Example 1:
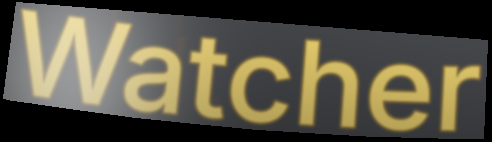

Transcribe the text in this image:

Watcher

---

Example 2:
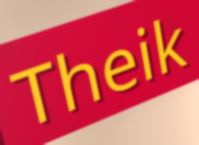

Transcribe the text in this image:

Theik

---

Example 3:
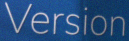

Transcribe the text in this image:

Version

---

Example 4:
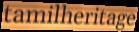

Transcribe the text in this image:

tamilheritage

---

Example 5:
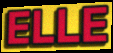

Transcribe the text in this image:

ELLE